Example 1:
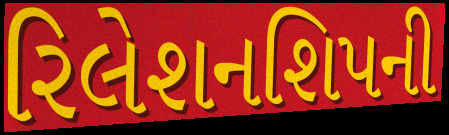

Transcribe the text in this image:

રિલેશનશિપની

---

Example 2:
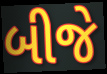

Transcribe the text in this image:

બીજે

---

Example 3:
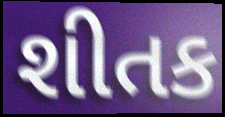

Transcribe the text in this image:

શીતક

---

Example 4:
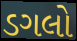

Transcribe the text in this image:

ડગલો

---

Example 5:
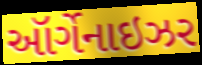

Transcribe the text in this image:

ઑર્ગેનાઇઝર